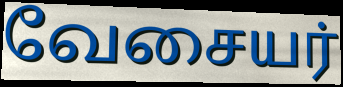
வேசையர்